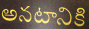
అనటానికి